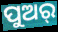
ପୁଅର୍